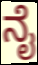
ನೈ